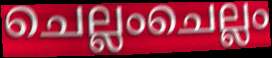
ചെല്ലംചെല്ലം